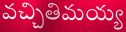
వచ్చితిమయ్య